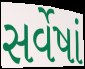
સર્વેષાં